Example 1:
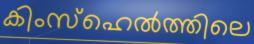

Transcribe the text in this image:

കിംസ്ഹെൽത്തിലെ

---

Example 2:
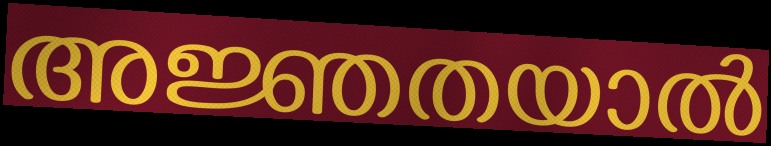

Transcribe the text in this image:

അജ്ഞതയാൽ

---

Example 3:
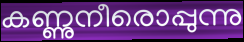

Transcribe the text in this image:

കണ്ണുനീരൊപ്പുന്നു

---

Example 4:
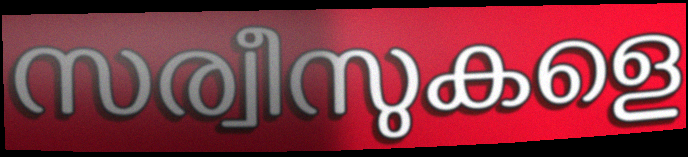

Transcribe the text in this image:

സര്വീസുകളെ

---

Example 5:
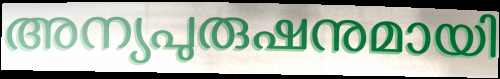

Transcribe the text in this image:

അന്യപുരുഷനുമായി